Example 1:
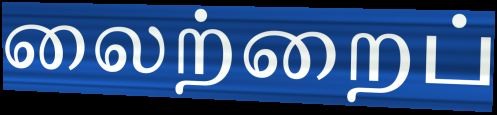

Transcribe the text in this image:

லைற்றைப்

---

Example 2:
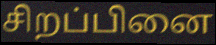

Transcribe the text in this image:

சிறப்பினை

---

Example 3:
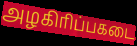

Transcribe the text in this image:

அழகிரிப்பகடை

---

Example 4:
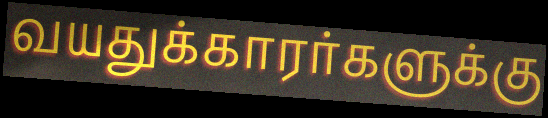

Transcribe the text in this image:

வயதுக்காரர்களுக்கு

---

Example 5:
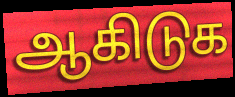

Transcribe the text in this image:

ஆகிடுக